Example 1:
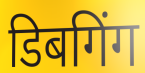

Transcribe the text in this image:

डिबगिंग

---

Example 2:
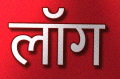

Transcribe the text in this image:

लॉग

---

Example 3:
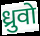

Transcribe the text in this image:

ध्रुवो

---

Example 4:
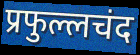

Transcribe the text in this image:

प्रफुल्लचंद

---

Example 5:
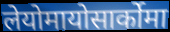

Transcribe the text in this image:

लेयोमायोसार्कोमा